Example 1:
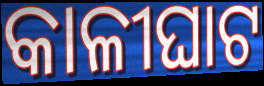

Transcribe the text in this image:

କାଳୀଘାଟ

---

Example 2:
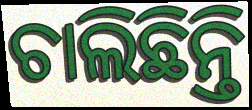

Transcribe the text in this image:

ଚାଲିଛିନ୍ତି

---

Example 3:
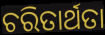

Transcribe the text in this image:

ଚରିତାର୍ଥତା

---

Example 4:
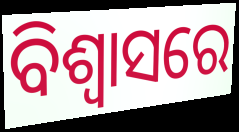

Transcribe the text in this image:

ବିଶ୍ୱାସରେ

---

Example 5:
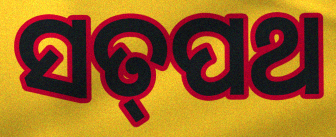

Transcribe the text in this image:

ସତ୍‌ପଥ